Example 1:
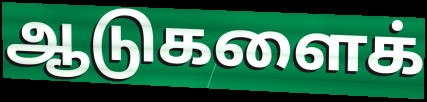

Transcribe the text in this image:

ஆடுகளைக்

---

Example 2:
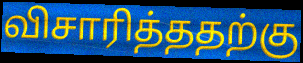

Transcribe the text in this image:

விசாரித்ததற்கு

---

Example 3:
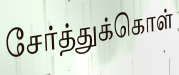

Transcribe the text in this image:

சேர்த்துக்கொள்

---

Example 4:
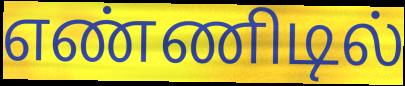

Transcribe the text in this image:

எண்ணிடில்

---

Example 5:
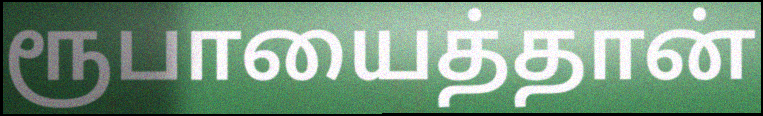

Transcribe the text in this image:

ரூபாயைத்தான்